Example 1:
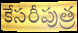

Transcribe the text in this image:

కేసరీపుత్ర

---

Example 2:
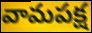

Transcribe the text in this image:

వామపక్ష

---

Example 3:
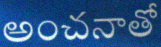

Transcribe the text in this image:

అంచనాతో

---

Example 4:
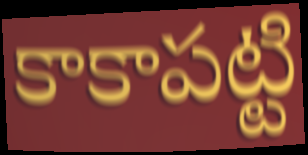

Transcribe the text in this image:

కాకాపట్టి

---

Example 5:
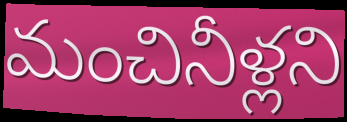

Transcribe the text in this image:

మంచినీళ్లని